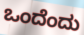
ಒಂದೆಂದು